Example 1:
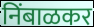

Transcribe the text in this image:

निंबाळकर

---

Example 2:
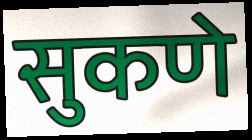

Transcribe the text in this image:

सुकणे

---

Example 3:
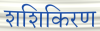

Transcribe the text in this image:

शशिकिरण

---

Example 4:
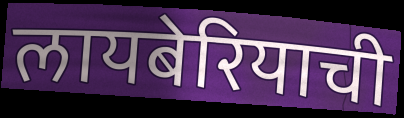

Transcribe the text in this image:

लायबेरियाची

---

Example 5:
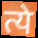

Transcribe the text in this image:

त्ये